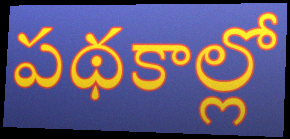
పథకాల్లో